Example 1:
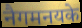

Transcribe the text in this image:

नैगमनयके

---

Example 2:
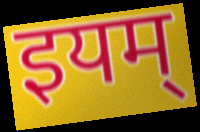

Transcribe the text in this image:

इयम्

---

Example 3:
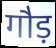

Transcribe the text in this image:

गौड़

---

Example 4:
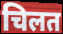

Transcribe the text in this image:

चिलत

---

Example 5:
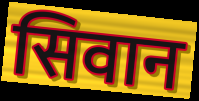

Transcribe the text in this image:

सिवान